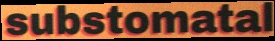
substomatal